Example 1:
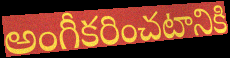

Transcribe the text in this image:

అంగీకరించటానికి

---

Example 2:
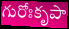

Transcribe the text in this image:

గురోఃకృపా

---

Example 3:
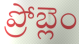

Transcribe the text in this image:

ప్రోబ్లెం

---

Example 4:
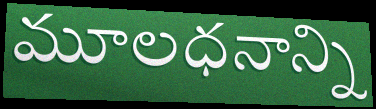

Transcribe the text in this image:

మూలధనాన్ని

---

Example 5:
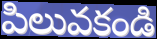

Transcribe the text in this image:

పిలువకండి